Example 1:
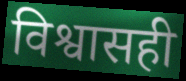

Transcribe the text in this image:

विश्वासही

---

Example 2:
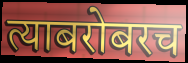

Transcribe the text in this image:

त्याबरोबरच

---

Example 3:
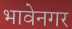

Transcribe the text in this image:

भावेनगर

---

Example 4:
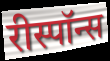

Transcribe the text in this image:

रीस्पॉन्स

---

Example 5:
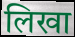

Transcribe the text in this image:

लिखा